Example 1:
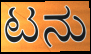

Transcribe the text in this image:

ಟನು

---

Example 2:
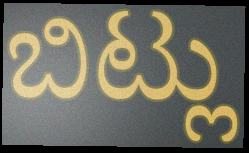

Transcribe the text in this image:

ಬಿಟ್ಲು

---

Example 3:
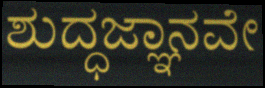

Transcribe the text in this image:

ಶುದ್ಧಜ್ಞಾನವೇ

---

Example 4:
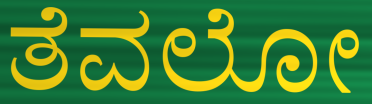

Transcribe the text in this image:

ತೆವಲೋ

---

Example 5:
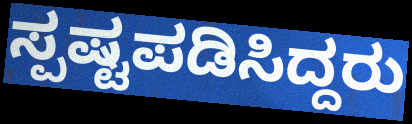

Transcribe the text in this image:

ಸ್ಪಷ್ಟಪಡಿಸಿದ್ದರು